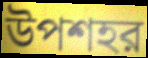
উপশহর